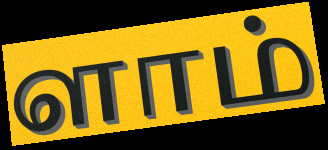
ளாம்